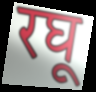
रघू